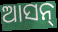
ଆସନ୍